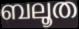
ബലൂത